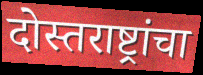
दोस्तराष्ट्रांचा